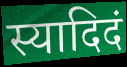
स्यादिदं